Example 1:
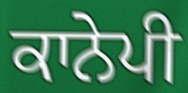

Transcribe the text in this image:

ਕਾਨੇਪੀ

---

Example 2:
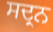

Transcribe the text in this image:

ਸਦ੍ਰਨ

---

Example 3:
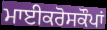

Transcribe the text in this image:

ਮਾਈਕਰੋਸਕੌਪਾਂ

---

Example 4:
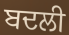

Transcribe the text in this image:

ਬਦਲੀ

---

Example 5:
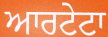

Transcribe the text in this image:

ਆਰਟੇਟਾ